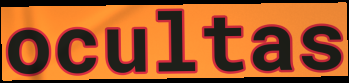
ocultas